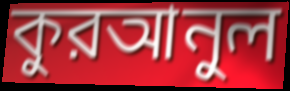
কুরআনুল